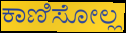
ಕಾಣಿಸೋಲ್ಲ